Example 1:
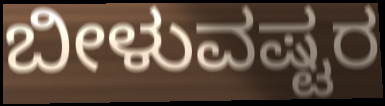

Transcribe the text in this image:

ಬೀಳುವಷ್ಟರ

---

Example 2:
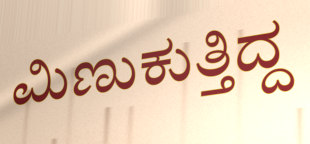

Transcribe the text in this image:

ಮಿಣುಕುತ್ತಿದ್ದ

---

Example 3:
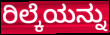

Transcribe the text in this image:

ರಿಲ್ಕೆಯನ್ನು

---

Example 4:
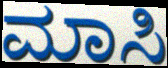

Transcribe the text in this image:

ಮಾಸಿ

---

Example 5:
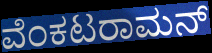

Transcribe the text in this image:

ವೆಂಕಟರಾಮನ್